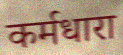
कर्मधारा